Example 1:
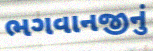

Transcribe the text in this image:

ભગવાનજીનું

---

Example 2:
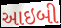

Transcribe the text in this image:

આઇબી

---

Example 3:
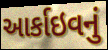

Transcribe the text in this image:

આર્કાઇવનું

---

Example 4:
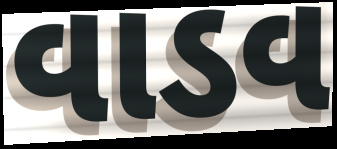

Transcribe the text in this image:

વાડવ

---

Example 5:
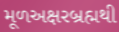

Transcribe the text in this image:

મૂળઅક્ષરબ્રહ્મથી